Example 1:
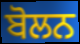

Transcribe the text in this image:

ਬੋਲਨ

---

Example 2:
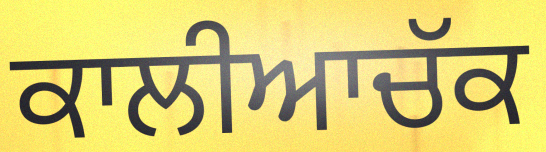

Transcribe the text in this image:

ਕਾਲੀਆਚੱਕ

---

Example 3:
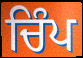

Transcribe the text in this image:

ਚਿੰਪ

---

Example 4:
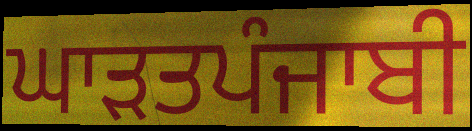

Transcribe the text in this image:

ਘਾੜਤਪੰਜਾਬੀ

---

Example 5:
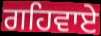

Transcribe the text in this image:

ਗਹਿਵਾਏ